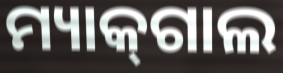
ମ୍ୟାକ୍‌ଗାଲ